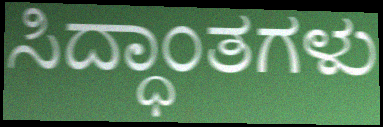
ಸಿದ್ಧಾಂತಗಳು